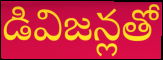
డివిజన్లతో